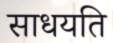
साधयति